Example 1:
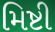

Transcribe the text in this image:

મિષ્ટી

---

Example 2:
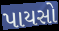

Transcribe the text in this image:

પાયસો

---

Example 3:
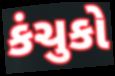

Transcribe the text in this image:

કંચુકો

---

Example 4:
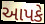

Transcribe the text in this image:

આપકે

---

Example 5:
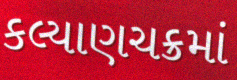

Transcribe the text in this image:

કલ્યાણચક્રમાં